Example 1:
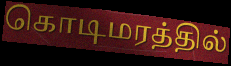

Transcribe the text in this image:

கொடிமரத்தில்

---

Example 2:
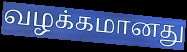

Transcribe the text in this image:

வழக்கமானது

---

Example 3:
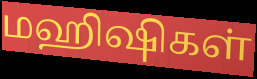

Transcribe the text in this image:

மஹிஷிகள்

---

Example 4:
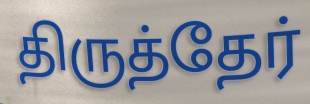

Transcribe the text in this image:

திருத்தேர்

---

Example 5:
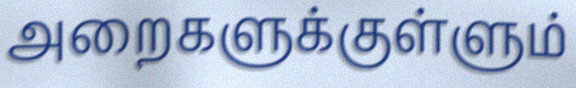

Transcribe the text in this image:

அறைகளுக்குள்ளும்